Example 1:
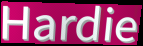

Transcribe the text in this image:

Hardie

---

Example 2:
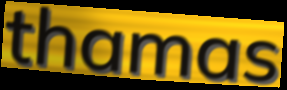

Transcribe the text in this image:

thamas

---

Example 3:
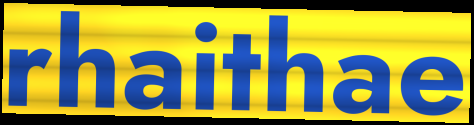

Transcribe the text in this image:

rhaithae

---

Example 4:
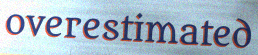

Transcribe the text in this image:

overestimated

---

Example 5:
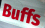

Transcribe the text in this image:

Buffs